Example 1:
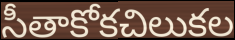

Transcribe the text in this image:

సీతాకోకచిలుకల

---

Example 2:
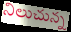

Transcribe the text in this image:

నిలుచున్న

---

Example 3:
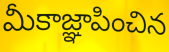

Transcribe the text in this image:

మీకాజ్ఞాపించిన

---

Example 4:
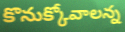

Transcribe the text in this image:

కొనుక్కోవాలన్న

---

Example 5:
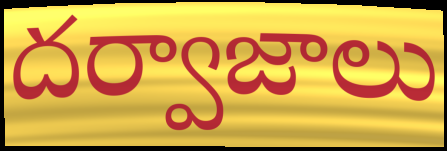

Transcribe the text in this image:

దర్వాజాలు